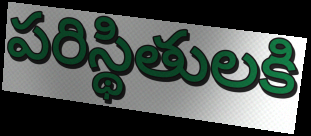
పరిస్థితులకి